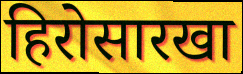
हिरोसारखा